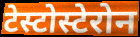
टेस्टोस्टेरोन